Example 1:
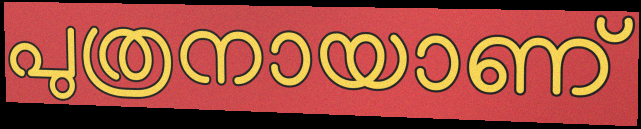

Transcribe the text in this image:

പുത്രനായാണ്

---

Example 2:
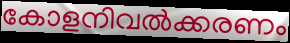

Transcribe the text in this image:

കോളനിവൽക്കരണം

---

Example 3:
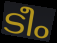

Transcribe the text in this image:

ടീം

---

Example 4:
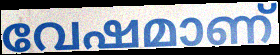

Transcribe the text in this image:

വേഷമാണ്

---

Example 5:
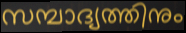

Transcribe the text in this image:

സമ്പാദ്യത്തിനും